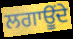
ਲਗਾਊਂਦੇ